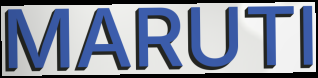
MARUTI